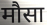
मौसा